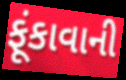
ફૂંકાવાની